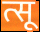
त्सू